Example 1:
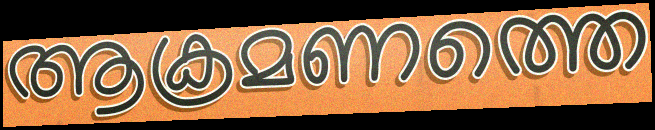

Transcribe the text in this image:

ആക്രമണത്തെ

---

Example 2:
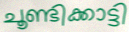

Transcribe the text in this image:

ചൂണ്ടിക്കാട്ടി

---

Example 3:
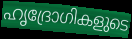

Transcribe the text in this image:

ഹൃദ്രോഗികളുടെ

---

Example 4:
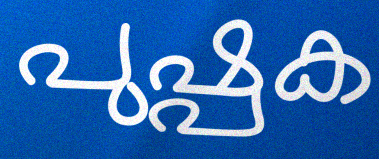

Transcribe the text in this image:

പുഷ്പക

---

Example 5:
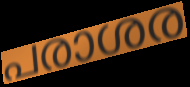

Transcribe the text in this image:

പരാശര